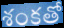
శంకతో